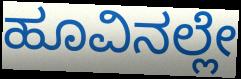
ಹೂವಿನಲ್ಲೇ